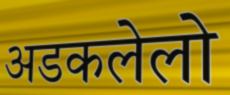
अडकलेलो